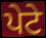
ਪੇਟੇ